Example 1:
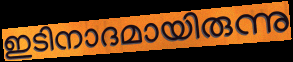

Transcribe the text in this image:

ഇടിനാദമായിരുന്നു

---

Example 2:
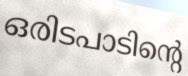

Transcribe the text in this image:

ഒരിടപാടിന്റെ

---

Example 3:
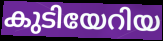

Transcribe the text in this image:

കുടിയേറിയ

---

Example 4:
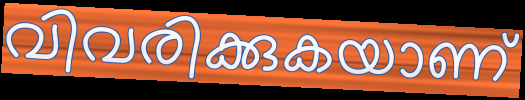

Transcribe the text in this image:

വിവരിക്കുകയാണ്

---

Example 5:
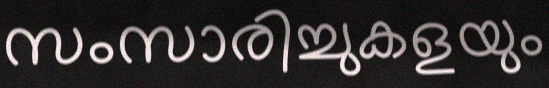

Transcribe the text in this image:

സംസാരിച്ചുകളയും